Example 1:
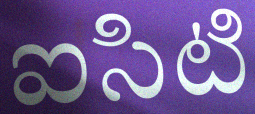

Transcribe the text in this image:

ఐసిటి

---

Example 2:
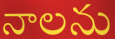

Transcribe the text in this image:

నాలను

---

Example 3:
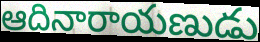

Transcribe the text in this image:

ఆదినారాయణుడు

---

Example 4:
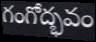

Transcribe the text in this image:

గంగోద్భవం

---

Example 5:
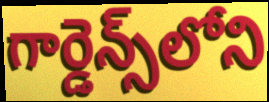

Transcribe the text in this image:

గార్డెన్స్‌లోని